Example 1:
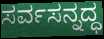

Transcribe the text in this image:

ಸರ್ವಸನ್ನದ್ಧ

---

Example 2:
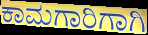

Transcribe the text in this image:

ಕಾಮಗಾರಿಗಾಗಿ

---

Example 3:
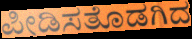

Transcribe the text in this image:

ಪೀಡಿಸತೊಡಗಿದ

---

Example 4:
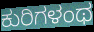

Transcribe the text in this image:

ಕುರಿಗಳಂಥ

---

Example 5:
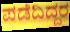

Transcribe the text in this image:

ಪಡೆದಿದ್ದರ